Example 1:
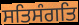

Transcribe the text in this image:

ਸਤਿਸੰਗਤਿ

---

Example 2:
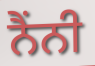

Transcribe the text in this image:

ਨੈਂਨੀ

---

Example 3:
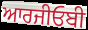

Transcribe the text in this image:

ਆਰਜੀਓਬੀ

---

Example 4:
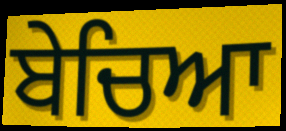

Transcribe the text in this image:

ਬੇਚਿਆ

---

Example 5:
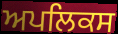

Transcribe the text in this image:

ਅਪਲਿਕਸ